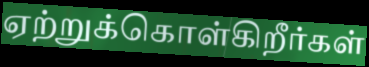
ஏற்றுக்கொள்கிறீர்கள்